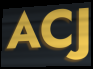
ACJ